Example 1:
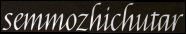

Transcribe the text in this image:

semmozhichutar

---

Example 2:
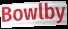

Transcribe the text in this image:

Bowlby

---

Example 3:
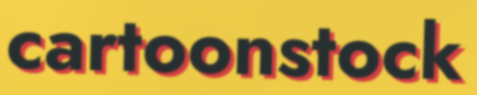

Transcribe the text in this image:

cartoonstock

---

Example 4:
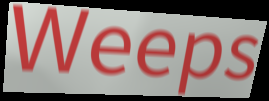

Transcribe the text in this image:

Weeps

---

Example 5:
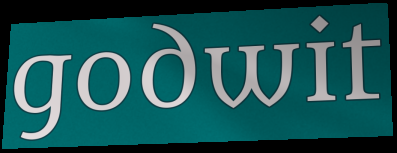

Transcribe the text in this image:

godwit